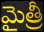
మైత్రీ